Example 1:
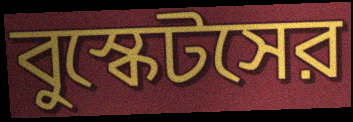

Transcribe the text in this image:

বুস্কেটসের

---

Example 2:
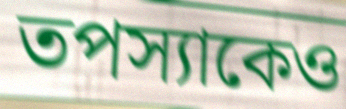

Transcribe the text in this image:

তপস্যাকেও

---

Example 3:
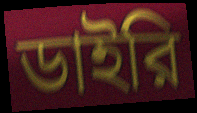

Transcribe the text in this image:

ডাইরি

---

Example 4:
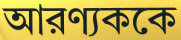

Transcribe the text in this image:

আরণ্যককে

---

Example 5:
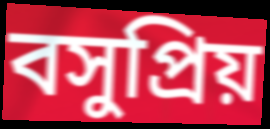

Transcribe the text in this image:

বসুপ্রিয়